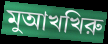
মুআখখিরু